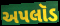
અપલૉડ